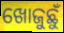
ଖୋଜୁଛୁଁ